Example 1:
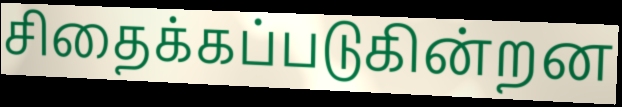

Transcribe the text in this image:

சிதைக்கப்படுகின்றன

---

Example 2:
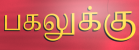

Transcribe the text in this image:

பகலுக்கு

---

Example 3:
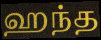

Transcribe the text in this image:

ஹந்த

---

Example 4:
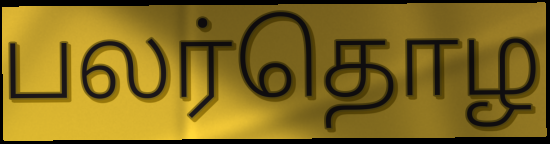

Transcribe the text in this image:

பலர்தொழ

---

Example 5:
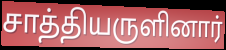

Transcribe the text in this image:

சாத்தியருளினார்